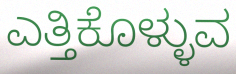
ಎತ್ತಿಕೊಳ್ಳುವ